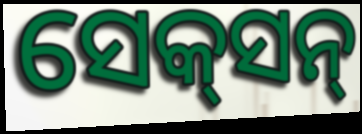
ସେକ୍‌ସନ୍